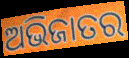
ଅଭିଜାତର